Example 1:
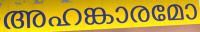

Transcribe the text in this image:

അഹങ്കാരമോ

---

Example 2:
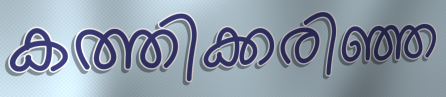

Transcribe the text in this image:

കത്തിക്കരിഞ്ഞ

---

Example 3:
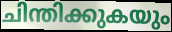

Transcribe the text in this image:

ചിന്തിക്കുകയും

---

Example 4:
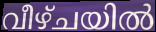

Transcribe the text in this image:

വീഴ്ചയിൽ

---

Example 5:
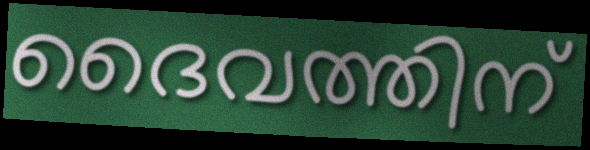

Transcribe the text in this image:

ദൈവത്തിന്